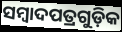
ସମ୍ୱାଦପତ୍ରଗୁଡ଼ିକ